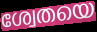
ശ്വേതയെ